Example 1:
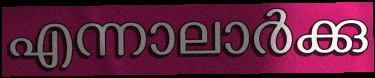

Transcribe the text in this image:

എന്നാലാർക്കു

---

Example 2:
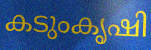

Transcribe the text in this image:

കടുംകൃഷി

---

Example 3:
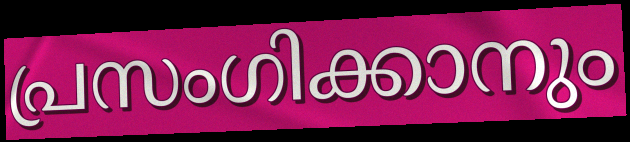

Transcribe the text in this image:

പ്രസംഗിക്കാനും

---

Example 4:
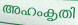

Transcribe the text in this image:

അഹംകൃതി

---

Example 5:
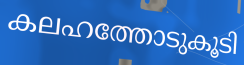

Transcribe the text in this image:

കലഹത്തോടുകൂടി